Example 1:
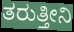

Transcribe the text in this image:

ತರುತ್ತೀನಿ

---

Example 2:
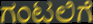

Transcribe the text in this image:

ಗಂಟಲಿಗೆ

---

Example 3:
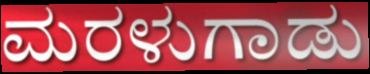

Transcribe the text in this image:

ಮರಳುಗಾಡು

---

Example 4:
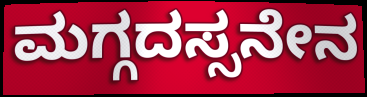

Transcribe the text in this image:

ಮಗ್ಗದಸ್ಸನೇನ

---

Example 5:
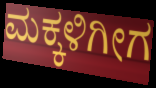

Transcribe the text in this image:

ಮಕ್ಕಳಿಗೀಗ